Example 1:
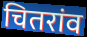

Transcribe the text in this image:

चितरांव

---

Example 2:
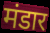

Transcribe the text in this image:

मंडार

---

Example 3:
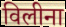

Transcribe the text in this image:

विलीना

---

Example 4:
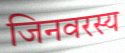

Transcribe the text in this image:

जिनवरस्य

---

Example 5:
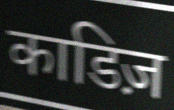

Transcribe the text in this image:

काडिज़